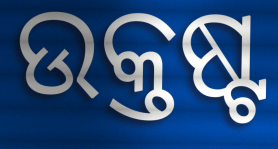
ଉକ୍ତଷ୍ଟ